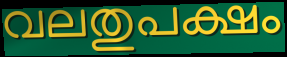
വലതുപക്ഷം